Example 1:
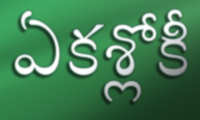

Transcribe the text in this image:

ఏకశ్లోకీ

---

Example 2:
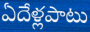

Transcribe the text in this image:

ఏదేళ్లపాటు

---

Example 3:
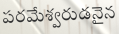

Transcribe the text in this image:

పరమేశ్వరుడనైన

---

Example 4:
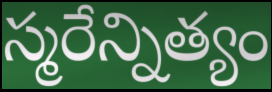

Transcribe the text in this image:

స్మరేన్నిత్యం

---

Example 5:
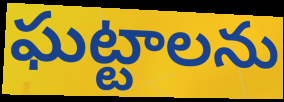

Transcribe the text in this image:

ఘట్టాలను